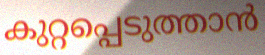
കുറ്റപ്പെടുത്താൻ